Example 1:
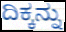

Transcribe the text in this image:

ದಿಕ್ಕನ್ನು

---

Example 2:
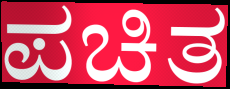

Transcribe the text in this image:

ಪಚಿತ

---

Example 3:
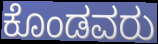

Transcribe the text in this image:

ಕೊಂಡವರು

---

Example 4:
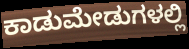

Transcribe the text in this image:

ಕಾಡುಮೇಡುಗಳಲ್ಲಿ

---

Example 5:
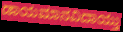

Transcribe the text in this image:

ಡಾಯಮಾನವಿದಾಯ್ತು